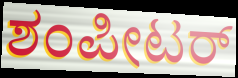
ಶಂಪೀಟರ್